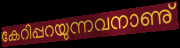
കേറിപ്പറയുന്നവനാണു്